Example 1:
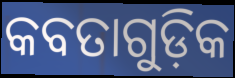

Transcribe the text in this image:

କବତାଗୁଡ଼ିକ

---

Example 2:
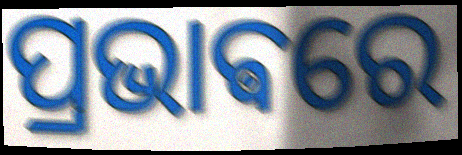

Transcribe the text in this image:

ପ୍ରଭାଵରେ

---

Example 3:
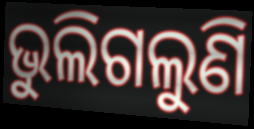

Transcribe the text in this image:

ଭୁଲିଗଲୁଣି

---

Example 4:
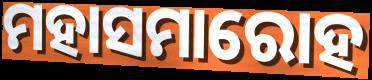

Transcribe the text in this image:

ମହାସମାରୋହ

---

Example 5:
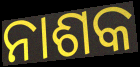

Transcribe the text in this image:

ନାଶକ